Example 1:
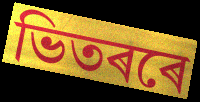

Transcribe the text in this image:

ভিতৰৰে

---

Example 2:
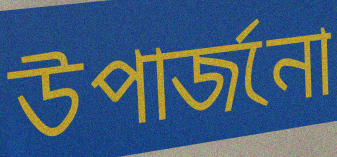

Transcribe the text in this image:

উপাৰ্জনো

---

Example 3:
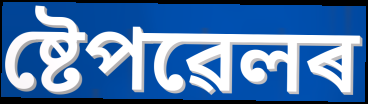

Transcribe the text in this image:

ষ্টেপৱেলৰ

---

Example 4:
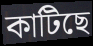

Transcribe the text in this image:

কাটিছে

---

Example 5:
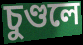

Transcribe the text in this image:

চুণ্ডলে